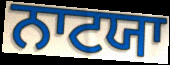
ਨਾਟਯਾ